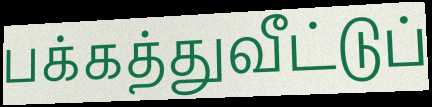
பக்கத்துவீட்டுப்